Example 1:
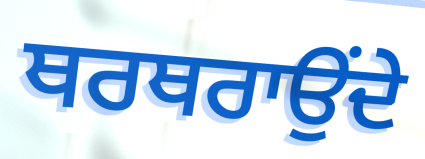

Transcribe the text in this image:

ਥਰਥਰਾਉਂਦੇ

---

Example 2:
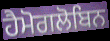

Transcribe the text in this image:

ਹੈਮੋਗਲੋਬਿਨ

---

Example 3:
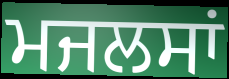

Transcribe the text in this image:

ਮਜਲਸਾਂ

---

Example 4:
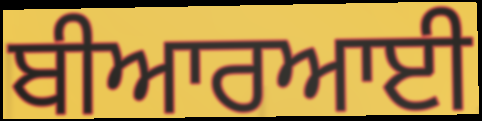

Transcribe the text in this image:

ਬੀਆਰਆਈ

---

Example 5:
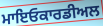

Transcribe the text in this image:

ਮਾਇਓਕਾਰਡੀਅਲ